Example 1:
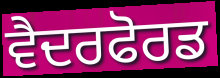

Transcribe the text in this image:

ਵੈਦਰਫੋਰਡ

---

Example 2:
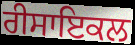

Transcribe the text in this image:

ਰੀਸਾਇਕਲ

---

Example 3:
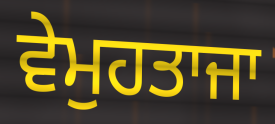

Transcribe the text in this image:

ਵੇਮੁਹਤਾਜਾ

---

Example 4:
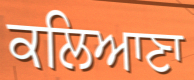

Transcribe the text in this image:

ਕਲਿਆਣਾ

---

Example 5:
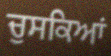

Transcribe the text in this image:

ਚੁਸਕਿਆਂ